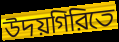
উদয়গিরিতে